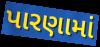
પારણામાં